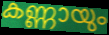
കണ്ണായും